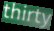
thirty